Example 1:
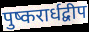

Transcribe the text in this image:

पुष्करार्धद्वीप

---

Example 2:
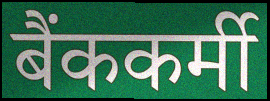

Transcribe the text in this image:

बैंककर्मी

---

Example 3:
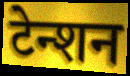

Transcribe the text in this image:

टेन्शन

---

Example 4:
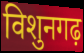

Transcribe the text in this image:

विशुनगढ़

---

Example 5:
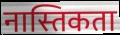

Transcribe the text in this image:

नास्तिकता